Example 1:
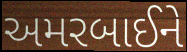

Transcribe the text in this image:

અમરબાઈને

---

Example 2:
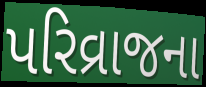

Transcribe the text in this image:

પરિવ્રાજના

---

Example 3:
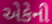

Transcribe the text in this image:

એકેની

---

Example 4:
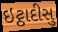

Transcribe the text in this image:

ઇટ્ઠાદીસુ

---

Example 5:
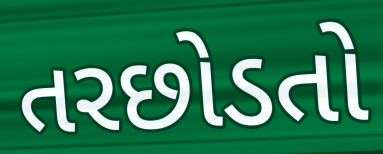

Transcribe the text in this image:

તરછોડતો